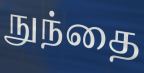
நுந்தை